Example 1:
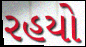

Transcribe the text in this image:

રહયો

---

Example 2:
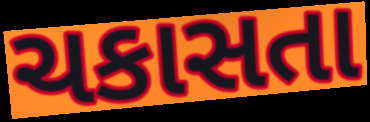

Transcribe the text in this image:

ચકાસતા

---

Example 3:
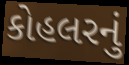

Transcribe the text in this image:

કોહલરનું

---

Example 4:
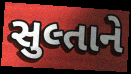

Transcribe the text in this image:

સુલ્તાને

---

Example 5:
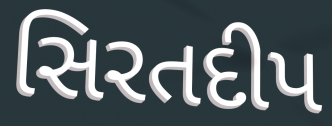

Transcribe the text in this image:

સિરતદીપ